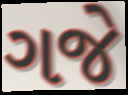
ગજે